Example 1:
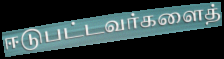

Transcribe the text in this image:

ஈடுபட்டவர்களைத்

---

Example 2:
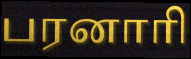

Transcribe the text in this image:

பரனாரி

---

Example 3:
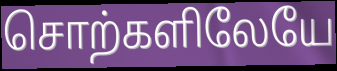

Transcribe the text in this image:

சொற்களிலேயே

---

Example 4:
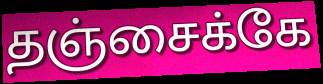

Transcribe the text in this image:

தஞ்சைக்கே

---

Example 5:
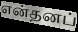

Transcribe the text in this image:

என்தனப்